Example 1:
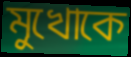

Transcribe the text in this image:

মুখোকে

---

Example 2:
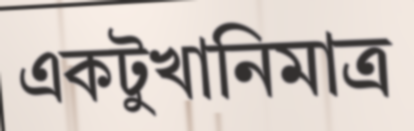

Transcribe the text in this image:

একটুখানিমাত্র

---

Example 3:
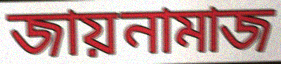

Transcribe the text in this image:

জায়নামাজ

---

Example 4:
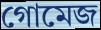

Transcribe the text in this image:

গোমেজ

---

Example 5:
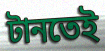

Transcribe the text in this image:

টানতেই